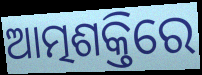
ଆତ୍ମଶକ୍ତିରେ